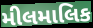
મીલમાલિક